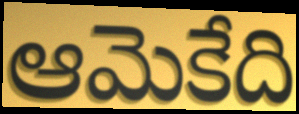
ఆమెకేది